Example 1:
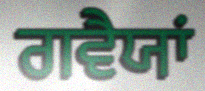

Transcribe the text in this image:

ਗਵੈਯਾਂ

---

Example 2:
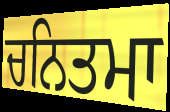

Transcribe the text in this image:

ਚਨਿਤਮਾ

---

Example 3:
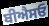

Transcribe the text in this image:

ਬੀਐਸਓ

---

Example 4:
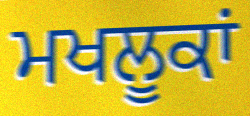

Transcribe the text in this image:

ਮਖਲੂਕਾਂ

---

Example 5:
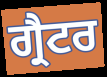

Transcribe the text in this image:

ਗ੍ਰੈਟਰ